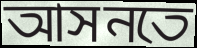
আসনতে